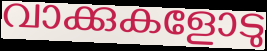
വാക്കുകളോടു